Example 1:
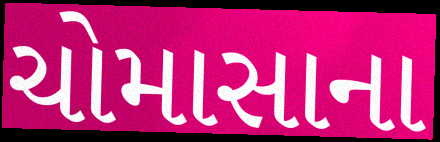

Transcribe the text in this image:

ચોમાસાના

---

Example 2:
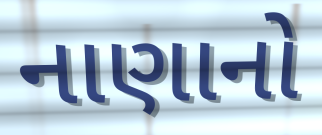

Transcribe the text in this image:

નાણાનો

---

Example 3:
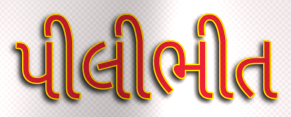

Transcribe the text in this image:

પીલીભીત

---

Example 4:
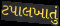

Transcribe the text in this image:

ટપાલખાતું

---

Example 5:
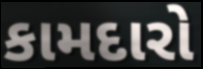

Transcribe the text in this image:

કામદારો